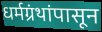
धर्मग्रंथांपासून